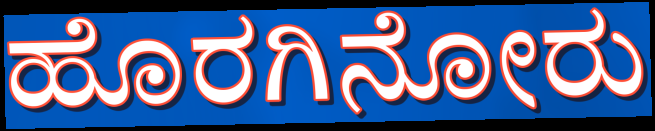
ಹೊರಗಿನೋರು